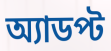
অ্যাডপ্ট